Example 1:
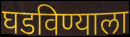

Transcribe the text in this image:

घडविण्याला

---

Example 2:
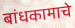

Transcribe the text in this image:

बांधकामाचे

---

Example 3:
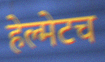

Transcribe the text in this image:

हेल्मेटच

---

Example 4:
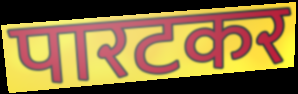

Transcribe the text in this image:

पारटकर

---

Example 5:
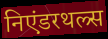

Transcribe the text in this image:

निएंडरथल्स